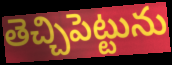
తెచ్చిపెట్టును